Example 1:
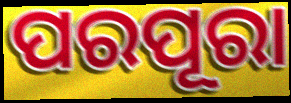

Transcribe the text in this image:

ପରପୂରା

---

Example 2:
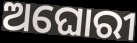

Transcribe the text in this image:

ଅଘୋରୀ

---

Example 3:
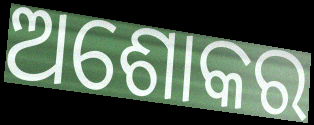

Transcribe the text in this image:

ଅଶୋକର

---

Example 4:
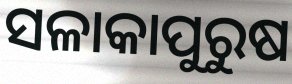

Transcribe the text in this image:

ସଳାକାପୁରୁଷ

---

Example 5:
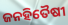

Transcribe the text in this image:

ଜନହିତୈଷୀ